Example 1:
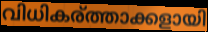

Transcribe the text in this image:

വിധികര്ത്താക്കളായി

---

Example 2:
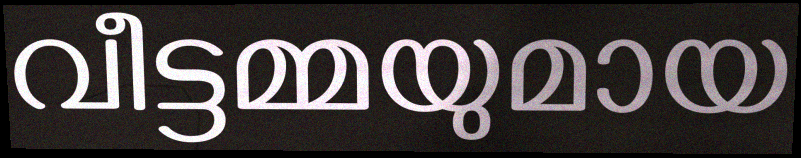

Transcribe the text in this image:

വീട്ടമ്മയുമായ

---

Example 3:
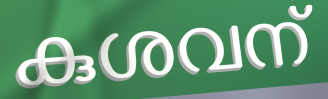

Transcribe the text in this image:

കുശവന്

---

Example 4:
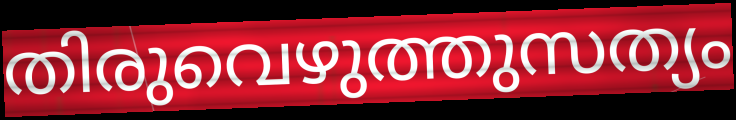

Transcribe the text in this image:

തിരുവെഴുത്തുസത്യം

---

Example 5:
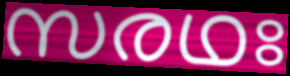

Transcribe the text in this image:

സരഥഃ